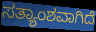
ಸತ್ಯಾಂಶವಾಗಿದೆ